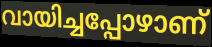
വായിച്ചപ്പോഴാണ്